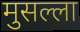
मुसल्ला